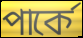
পার্কে